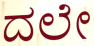
ದಲೇ